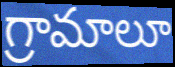
గ్రామాలూ